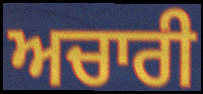
ਅਚਾਰੀ